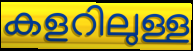
കളറിലുള്ള